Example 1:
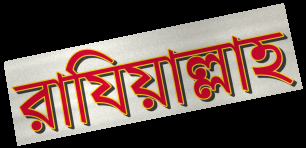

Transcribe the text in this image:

রাযিয়াল্লাহ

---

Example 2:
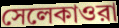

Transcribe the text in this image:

সেলেকাওরা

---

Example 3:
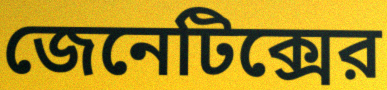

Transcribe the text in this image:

জেনেটিক্সের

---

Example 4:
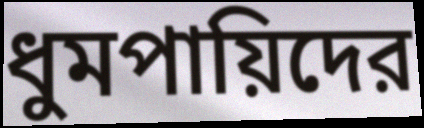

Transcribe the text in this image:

ধুমপায়িদের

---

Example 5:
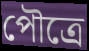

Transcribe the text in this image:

পৌত্রে